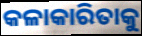
କଳାକାରିତାକୁ